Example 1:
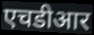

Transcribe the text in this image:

एचडीआर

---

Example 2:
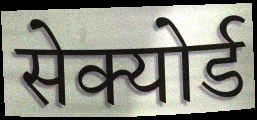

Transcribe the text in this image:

सेक्योर्ड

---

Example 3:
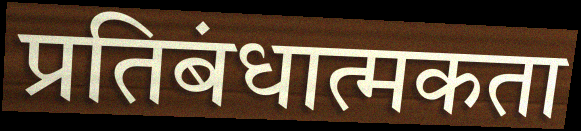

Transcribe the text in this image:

प्रतिबंधात्मकता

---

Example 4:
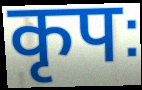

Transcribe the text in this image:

कृपः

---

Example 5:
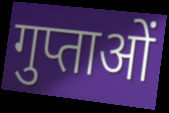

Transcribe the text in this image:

गुप्ताओं